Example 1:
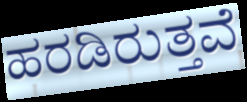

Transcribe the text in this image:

ಹರಡಿರುತ್ತವೆ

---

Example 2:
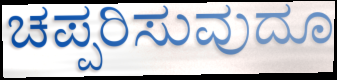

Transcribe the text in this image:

ಚಪ್ಪರಿಸುವುದೂ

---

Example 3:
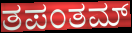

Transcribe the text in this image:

ತಪಂತಮ್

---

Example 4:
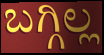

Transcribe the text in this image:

ಬಗ್ಗಿಲ್ಲ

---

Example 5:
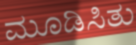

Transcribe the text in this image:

ಮೂಡಿಸಿತು